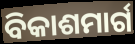
ବିକାଶମାର୍ଗ